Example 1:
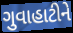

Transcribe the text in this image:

ગુવાહાટીને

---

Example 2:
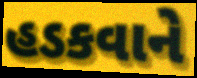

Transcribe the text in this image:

હડકવાને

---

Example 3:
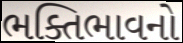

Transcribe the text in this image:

ભક્તિભાવનો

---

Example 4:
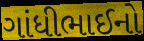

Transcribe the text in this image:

ગાંધીભાઈનો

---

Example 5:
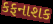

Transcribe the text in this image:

કફનાશક